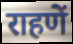
राहणें